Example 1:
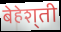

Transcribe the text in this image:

बेहेश्ती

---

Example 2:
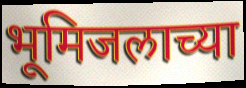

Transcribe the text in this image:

भूमिजलाच्या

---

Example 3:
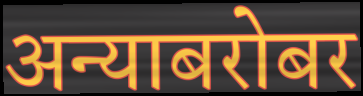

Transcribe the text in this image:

अन्याबरोबर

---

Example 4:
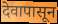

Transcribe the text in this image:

देवापासून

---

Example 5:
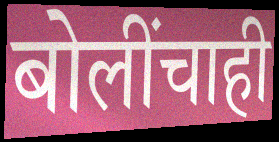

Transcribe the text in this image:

बोलींचाही